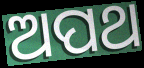
ଅପଥ